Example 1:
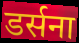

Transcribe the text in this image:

डर्सना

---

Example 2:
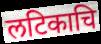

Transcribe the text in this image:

लटिकाचि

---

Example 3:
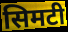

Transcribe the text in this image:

सिमटी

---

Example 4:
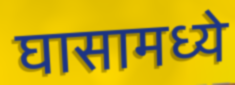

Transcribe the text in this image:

घासामध्ये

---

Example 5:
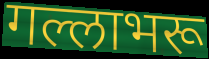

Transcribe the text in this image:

गल्लाभरू